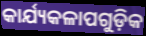
କାର୍ଯ୍ୟକଳାପଗୁଡ଼ିକ